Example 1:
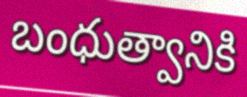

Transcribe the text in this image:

బంధుత్వానికి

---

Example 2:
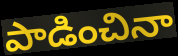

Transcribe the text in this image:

పాడించినా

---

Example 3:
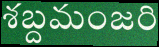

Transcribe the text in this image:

శబ్దమంజరి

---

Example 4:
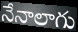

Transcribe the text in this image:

నేనాలాగు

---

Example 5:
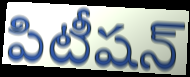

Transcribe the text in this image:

పిటీషన్